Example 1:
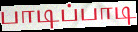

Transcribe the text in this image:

பாடிப்பாடி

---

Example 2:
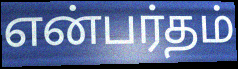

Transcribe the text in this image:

என்பர்தம்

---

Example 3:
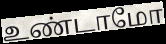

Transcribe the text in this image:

உண்டாமோ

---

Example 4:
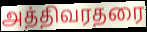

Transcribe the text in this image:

அத்திவரதரை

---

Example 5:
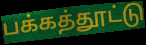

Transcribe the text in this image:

பக்கத்தூட்டு